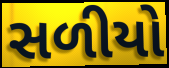
સળીયો